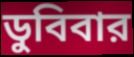
ডুবিবার